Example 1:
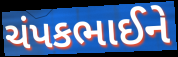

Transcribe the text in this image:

ચંપકભાઈને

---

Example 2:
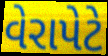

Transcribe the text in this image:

વેરાપેટે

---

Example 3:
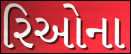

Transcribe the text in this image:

રિઓના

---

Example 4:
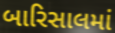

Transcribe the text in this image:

બારિસાલમાં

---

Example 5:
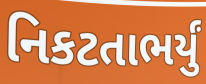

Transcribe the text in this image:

નિકટતાભર્યું